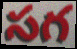
సగ